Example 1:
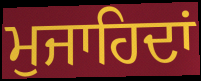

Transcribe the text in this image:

ਮੁਜਾਹਿਦਾਂ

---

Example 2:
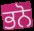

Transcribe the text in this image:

ਭਨੋ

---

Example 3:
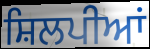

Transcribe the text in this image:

ਸ਼ਿਲਪੀਆਂ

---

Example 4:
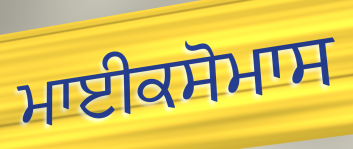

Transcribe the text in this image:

ਮਾਈਕਸੋਮਾਸ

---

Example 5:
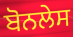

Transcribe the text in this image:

ਬੋਨਲੇਸ